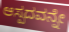
ಆಸ್ಪದವನ್ನೇ